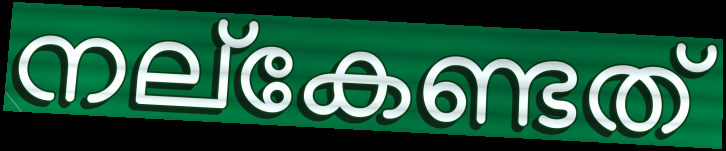
നല്കേണ്ടത്